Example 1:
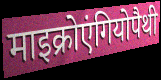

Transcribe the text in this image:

माइक्रोएंगियोपैथी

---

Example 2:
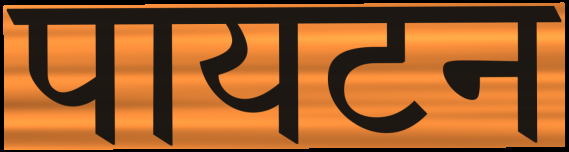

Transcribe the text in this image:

पायटन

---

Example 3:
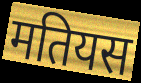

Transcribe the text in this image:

मतियस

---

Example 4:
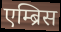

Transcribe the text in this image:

एम्ब्रिस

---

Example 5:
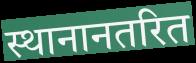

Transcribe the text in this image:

स्थानानतरित